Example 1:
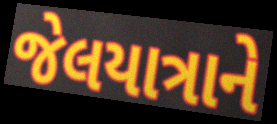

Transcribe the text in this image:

જેલયાત્રાને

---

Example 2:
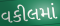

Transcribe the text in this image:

વકીલમાં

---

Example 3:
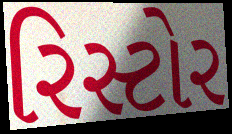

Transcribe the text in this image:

રિસ્ટોર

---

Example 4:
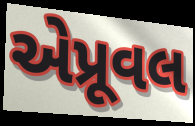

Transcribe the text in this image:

એપ્રૂવલ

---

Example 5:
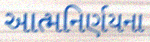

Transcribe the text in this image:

આત્મનિર્ણયના